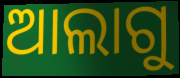
ଆଲାଗୁ